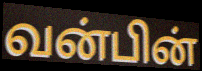
வன்பின்